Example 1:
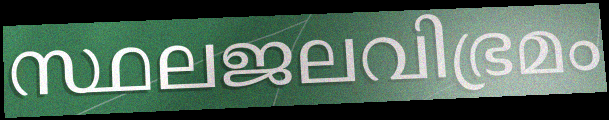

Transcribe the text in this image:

സ്ഥലജലവിഭ്രമം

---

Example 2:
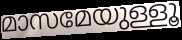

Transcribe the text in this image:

മാസമേയുള്ളൂ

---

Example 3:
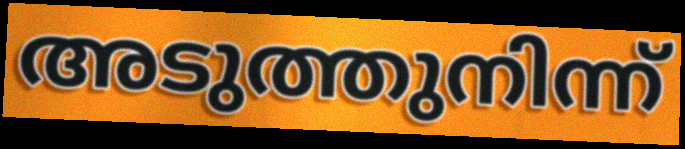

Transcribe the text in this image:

അടുത്തുനിന്ന്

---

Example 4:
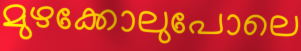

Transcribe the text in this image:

മുഴക്കോലുപോലെ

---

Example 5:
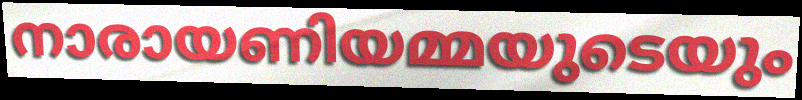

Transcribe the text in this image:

നാരായണിയമ്മയുടെയും